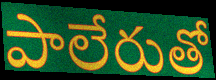
పాలేరుతో